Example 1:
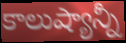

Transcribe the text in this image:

కాలుష్యాన్నీ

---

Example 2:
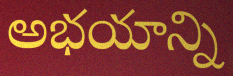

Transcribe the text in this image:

అభయాన్ని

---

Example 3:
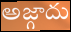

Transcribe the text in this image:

అజ్గాదు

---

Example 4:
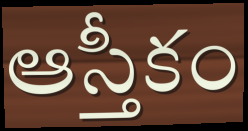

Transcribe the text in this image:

ఆస్తీకం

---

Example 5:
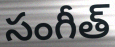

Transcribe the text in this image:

సంగీత్